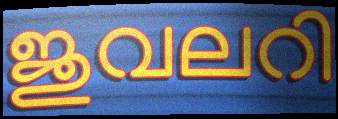
ജുവലറി